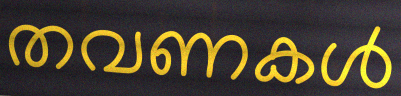
തവണകൾ